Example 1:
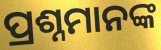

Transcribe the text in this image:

ପ୍ରଶ୍ନମାନଙ୍କ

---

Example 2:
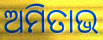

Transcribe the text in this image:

ଅମିତାଭ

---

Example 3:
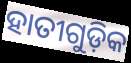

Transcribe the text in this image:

ହାତୀଗୁଡ଼ିକ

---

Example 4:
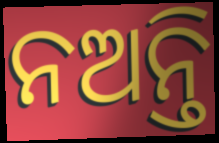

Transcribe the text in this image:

ନଅନ୍ତି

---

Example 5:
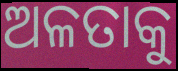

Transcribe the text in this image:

ଅଳତାକୁ